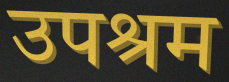
उपश्रम